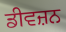
ਡੀਵਜ਼ਨ